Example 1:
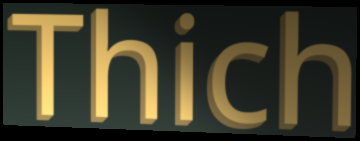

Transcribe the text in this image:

Thich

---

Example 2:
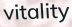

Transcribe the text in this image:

vitality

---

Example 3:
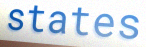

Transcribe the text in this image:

states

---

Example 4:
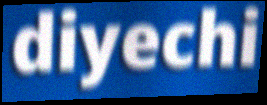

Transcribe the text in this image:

diyechi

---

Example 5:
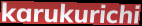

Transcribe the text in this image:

karukurichi